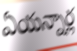
ఏయన్నార్ల